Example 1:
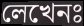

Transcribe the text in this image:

লেখেনঃ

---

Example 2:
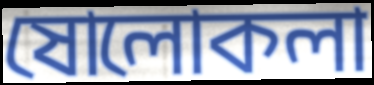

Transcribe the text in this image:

ষোলোকলা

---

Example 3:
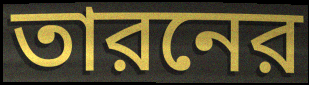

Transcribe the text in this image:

তারনের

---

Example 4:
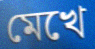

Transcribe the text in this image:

মেখে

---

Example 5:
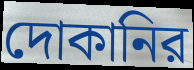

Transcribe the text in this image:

দোকানির